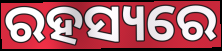
ରହସ୍ୟରେ